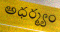
అధర్మ్యం